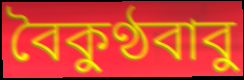
বৈকুণ্ঠবাবু